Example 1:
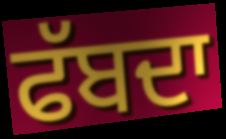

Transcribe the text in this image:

ਫੱਬਦਾ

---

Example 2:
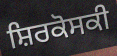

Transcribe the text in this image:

ਸ਼ਿਰਕੋਸਕੀ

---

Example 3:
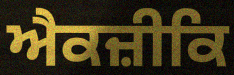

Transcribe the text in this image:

ਐਕਜ਼ੀਕਿ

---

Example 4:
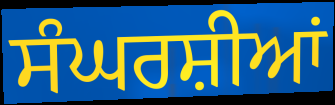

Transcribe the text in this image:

ਸੰਘਰਸ਼ੀਆਂ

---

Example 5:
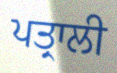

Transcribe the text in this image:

ਪਤ੍ਰਾਲੀ